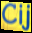
Cij